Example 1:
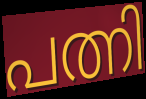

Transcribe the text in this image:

പത്നി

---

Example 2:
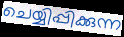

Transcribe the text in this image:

ചെയ്യിപ്പിക്കുന്ന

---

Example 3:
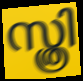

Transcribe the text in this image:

സ്ത്രി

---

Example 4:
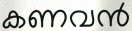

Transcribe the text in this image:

കണവൻ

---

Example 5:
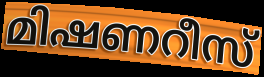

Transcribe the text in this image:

മിഷണറീസ്